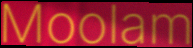
Moolam